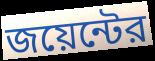
জয়েন্টের